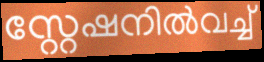
സ്റ്റേഷനിൽവച്ച്